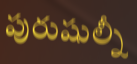
పురుషుల్నీ